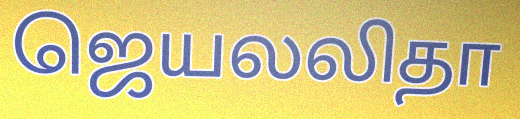
ஜெயலலிதா